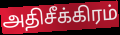
அதிசீக்கிரம்